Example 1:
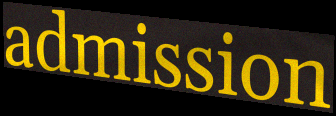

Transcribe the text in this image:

admission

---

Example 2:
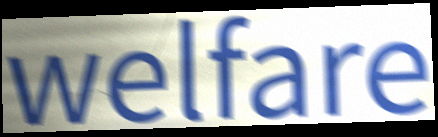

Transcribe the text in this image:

welfare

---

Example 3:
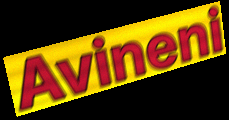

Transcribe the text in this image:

Avineni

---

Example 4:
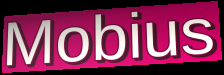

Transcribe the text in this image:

Mobius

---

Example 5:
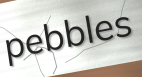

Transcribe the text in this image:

pebbles